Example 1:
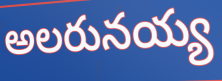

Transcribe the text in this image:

అలరునయ్య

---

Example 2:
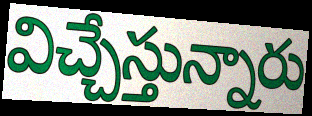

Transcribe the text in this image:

విచ్చేస్తున్నారు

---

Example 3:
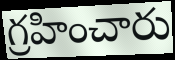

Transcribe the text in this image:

గ్రహించారు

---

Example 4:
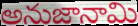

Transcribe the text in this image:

అనుజానామి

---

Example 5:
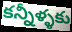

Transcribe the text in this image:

కన్నీళ్ళకు